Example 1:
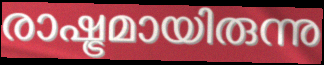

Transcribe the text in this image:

രാഷ്ട്രമായിരുന്നു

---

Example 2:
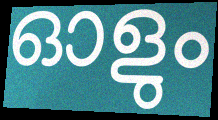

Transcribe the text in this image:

ഓളും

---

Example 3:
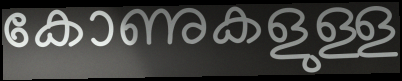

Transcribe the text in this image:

കോണുകളുള്ള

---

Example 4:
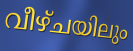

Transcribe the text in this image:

വീഴ്ചയിലും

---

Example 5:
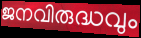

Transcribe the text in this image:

ജനവിരുദ്ധവും